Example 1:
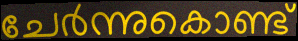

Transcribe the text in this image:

ചേർന്നുകൊണ്ട്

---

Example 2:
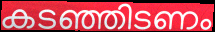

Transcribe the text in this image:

കടഞ്ഞിടണം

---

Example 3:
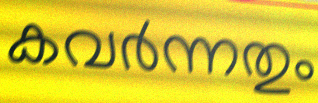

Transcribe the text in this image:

കവർന്നതും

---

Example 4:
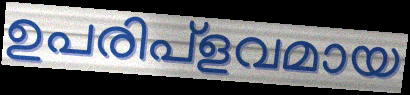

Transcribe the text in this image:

ഉപരിപ്ളവമായ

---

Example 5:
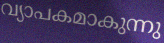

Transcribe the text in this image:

വ്യാപകമാകുന്നു